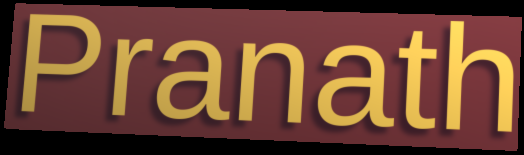
Pranath